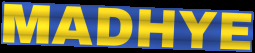
MADHYE